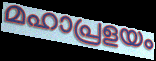
മഹാപ്രളയം